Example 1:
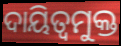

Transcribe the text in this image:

ଦାୟିତ୍ୱମୁକ୍ତ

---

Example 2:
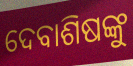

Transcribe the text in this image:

ଦେବାଶିଷଙ୍କୁ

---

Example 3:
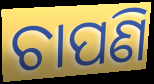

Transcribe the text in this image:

ଚାପଣି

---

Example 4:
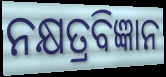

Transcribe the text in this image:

ନକ୍ଷତ୍ରବିଜ୍ଞାନ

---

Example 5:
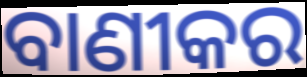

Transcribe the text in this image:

ବାଣୀକର